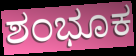
ಶಂಭೂಕ